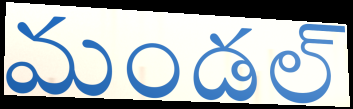
మండల్